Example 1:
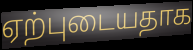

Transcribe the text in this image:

ஏற்புடையதாக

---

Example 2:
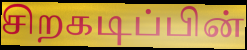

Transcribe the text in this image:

சிறகடிப்பின்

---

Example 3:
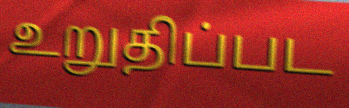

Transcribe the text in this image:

உறுதிப்பட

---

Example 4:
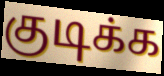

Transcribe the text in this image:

குடிக்க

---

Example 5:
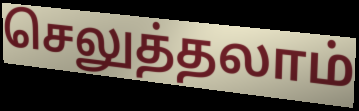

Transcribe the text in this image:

செலுத்தலாம்